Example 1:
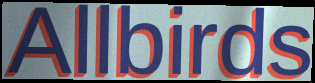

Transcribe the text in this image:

Allbirds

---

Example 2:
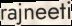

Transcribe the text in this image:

rajneeti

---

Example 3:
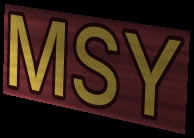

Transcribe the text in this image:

MSY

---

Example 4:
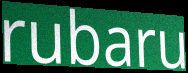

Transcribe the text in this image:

rubaru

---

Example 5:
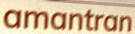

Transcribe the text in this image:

amantran